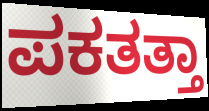
ಪಕತತ್ತಾ